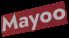
Mayoo